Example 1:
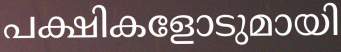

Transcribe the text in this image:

പക്ഷികളോടുമായി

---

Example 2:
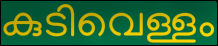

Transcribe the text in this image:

കുടിവെള്ളം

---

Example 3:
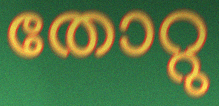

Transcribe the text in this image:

തോറ്റു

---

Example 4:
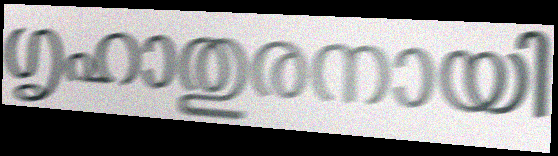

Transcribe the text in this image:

ഗൃഹാതുരനായി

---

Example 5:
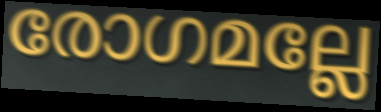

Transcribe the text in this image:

രോഗമല്ലേ